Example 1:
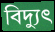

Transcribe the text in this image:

বিদ্যুৎ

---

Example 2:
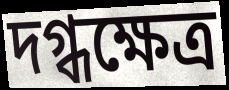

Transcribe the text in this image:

দগ্ধক্ষেত্র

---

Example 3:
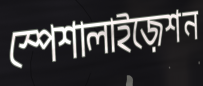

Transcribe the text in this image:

স্পেশালাইজ়েশন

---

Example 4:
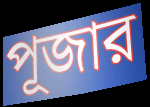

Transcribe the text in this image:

পূজার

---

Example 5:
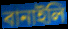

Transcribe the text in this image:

বানাইলি